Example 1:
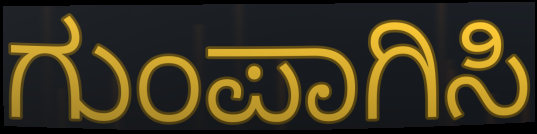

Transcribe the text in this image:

ಗುಂಪಾಗಿಸಿ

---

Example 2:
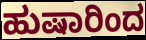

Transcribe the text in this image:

ಹುಷಾರಿಂದ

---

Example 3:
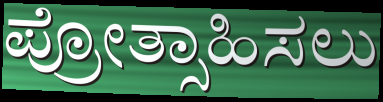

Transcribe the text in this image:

ಪ್ರೋತ್ಸಾಹಿಸಲು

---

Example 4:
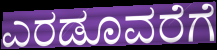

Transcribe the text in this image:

ಎರಡೂವರೆಗೆ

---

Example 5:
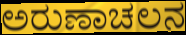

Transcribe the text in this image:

ಅರುಣಾಚಲನ